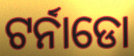
ଟର୍ନାଡୋ